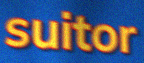
suitor